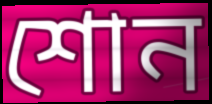
শোন